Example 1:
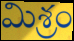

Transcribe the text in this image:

మిశ్రం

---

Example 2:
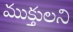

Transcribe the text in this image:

ముక్తులని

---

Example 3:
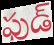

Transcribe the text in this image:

ఫుడ్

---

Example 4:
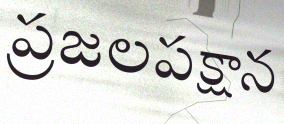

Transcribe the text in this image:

ప్రజలపక్షాన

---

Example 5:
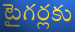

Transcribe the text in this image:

టైగర్లకు